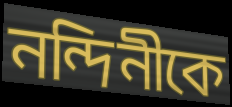
নন্দিনীকে